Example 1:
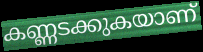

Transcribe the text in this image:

കണ്ണടക്കുകയാണ്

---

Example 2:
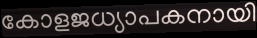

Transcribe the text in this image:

കോളജധ്യാപകനായി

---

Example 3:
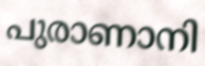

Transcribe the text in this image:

പുരാണാനി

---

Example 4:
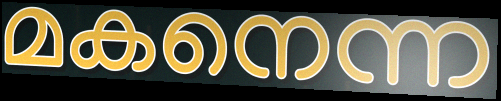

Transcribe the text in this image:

മകനെന്ന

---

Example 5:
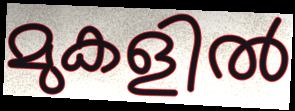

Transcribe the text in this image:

മുകളിൽ